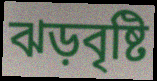
ঝড়বৃষ্টি